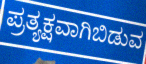
ಪ್ರತ್ಯಕ್ಷವಾಗಿಬಿಡುವ